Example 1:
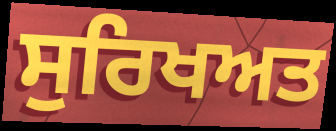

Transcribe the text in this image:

ਸੁਰਿਖਅਤ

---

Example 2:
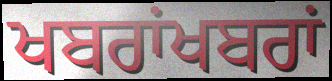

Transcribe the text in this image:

ਖਬਰਾਂਖਬਰਾਂ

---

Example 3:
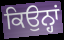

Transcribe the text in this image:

ਕਿਉਨ੍ਹਾਂ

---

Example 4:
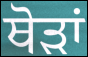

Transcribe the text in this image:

ਥੋੜਾਂ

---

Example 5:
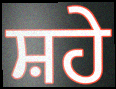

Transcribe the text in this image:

ਸ਼ਹੇ